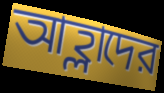
আহ্লাদের